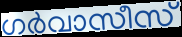
ഗർവാസീസ്